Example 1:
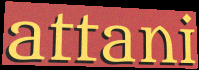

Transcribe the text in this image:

attani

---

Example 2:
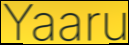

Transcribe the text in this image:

Yaaru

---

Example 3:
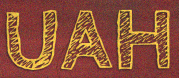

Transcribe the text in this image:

UAH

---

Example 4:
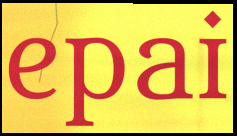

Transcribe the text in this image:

epai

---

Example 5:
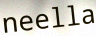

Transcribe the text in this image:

neella